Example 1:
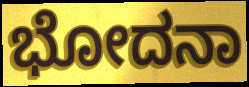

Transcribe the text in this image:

ಭೋದನಾ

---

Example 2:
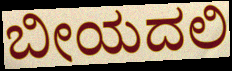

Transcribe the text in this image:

ಬೀಯದಲಿ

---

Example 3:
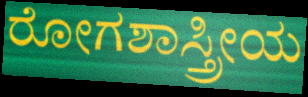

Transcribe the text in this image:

ರೋಗಶಾಸ್ತ್ರೀಯ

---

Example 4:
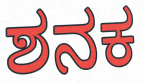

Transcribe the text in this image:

ಶನಕ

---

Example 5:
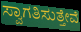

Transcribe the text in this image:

ಸ್ವಾಗತಿಸುತ್ತೇವೆ